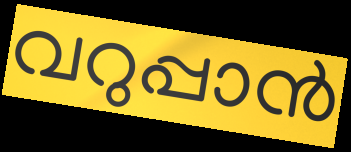
വറുപ്പാൻ